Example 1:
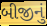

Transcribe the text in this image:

બીજીનું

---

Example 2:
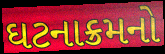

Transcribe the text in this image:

ઘટનાક્રમનો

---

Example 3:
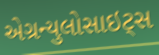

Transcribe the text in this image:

એગ્રન્યુલોસાઇટ્સ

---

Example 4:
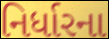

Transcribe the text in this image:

નિર્ધારના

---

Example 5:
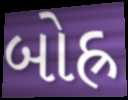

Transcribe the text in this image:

બોહ્ર